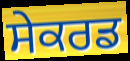
ਸੇਕਰਡ